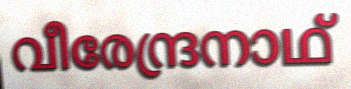
വീരേന്ദ്രനാഥ്